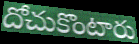
దోచుకొంటారు